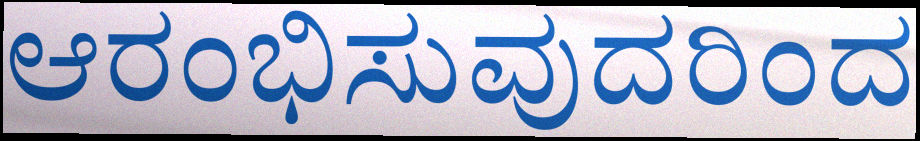
ಆರಂಭಿಸುವುದರಿಂದ